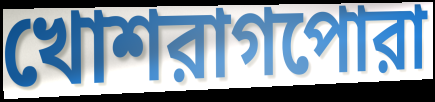
খোশরাগপোরা